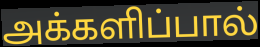
அக்களிப்பால்